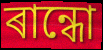
ৰান্ধো